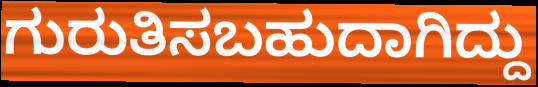
ಗುರುತಿಸಬಹುದಾಗಿದ್ದು